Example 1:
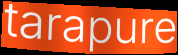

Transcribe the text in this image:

tarapure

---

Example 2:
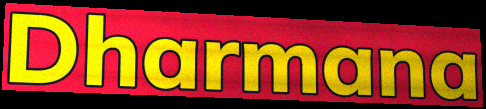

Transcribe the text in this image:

Dharmana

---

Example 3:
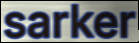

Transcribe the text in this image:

sarker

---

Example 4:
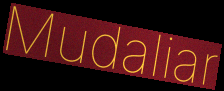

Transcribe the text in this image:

Mudaliar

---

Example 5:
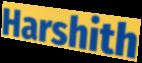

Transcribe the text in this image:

Harshith